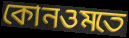
কোনওমতে